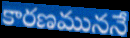
కారణముననే